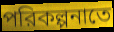
পরিকল্পনাতে